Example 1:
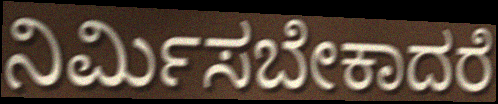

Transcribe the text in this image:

ನಿರ್ಮಿಸಬೇಕಾದರೆ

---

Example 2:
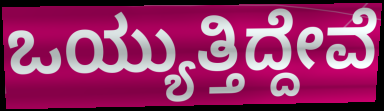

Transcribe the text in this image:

ಒಯ್ಯುತ್ತಿದ್ದೇವೆ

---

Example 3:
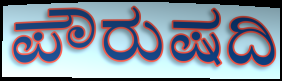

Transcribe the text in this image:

ಪೌರುಷದಿ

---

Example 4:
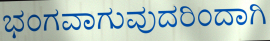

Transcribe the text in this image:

ಭಂಗವಾಗುವುದರಿಂದಾಗಿ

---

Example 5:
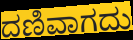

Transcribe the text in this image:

ದಣಿವಾಗದು